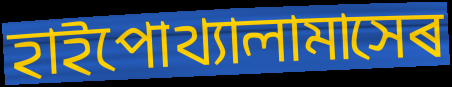
হাইপোথ্যালামাসেৰ